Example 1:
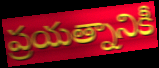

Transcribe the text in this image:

ప్రయత్నానికీ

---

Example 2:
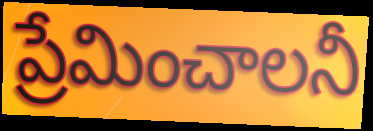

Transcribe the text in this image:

ప్రేమించాలనీ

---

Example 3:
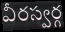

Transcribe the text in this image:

వీరస్వర్గ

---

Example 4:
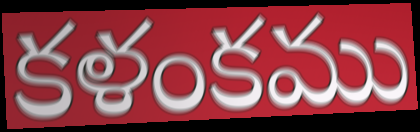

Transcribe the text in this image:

కళంకము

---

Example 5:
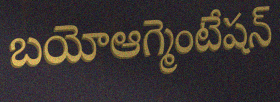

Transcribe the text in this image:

బయోఆగ్మెంటేషన్